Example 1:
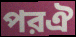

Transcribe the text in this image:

পরঐ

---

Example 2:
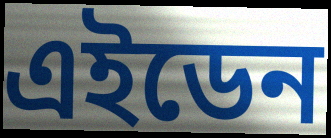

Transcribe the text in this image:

এইডেন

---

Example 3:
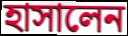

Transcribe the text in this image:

হাসালেন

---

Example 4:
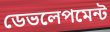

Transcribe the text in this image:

ডেভলেপমেন্ট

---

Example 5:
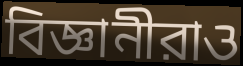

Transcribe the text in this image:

বিজ্ঞানীরাও